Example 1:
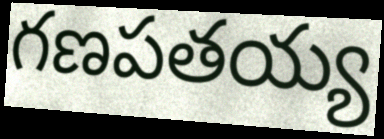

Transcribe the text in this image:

గణపతయ్య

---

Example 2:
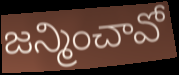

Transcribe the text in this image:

జన్మించావో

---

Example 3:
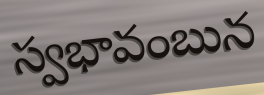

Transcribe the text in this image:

స్వభావంబున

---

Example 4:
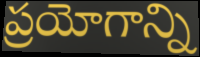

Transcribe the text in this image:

ప్రయోగాన్ని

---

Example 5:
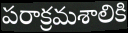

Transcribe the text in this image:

పరాక్రమశాలికి